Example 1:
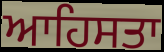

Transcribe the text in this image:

ਆਹਿਸਤਾ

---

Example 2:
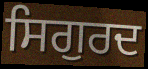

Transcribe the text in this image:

ਸਿਗੁਰਦ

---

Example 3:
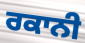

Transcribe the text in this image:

ਰਕਾਨੀ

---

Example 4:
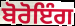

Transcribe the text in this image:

ਬੋਰੋਇੰਗ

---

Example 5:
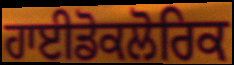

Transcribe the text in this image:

ਹਾਈਡੋਕਲੋਰਿਕ